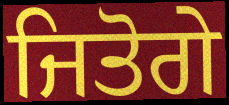
ਜਿਤੋਗੇ